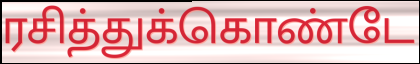
ரசித்துக்கொண்டே